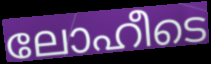
ലോഹീടെ